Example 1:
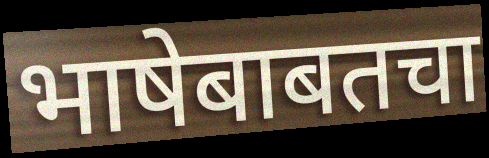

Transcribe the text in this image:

भाषेबाबतचा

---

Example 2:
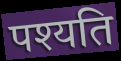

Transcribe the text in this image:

पश्यति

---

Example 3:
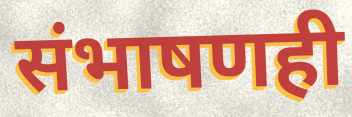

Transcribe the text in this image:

संभाषणही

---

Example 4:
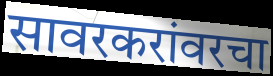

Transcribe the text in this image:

सावरकरांवरचा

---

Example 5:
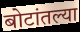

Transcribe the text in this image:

बोटांतल्या